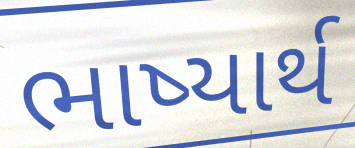
ભાષ્યાર્થ